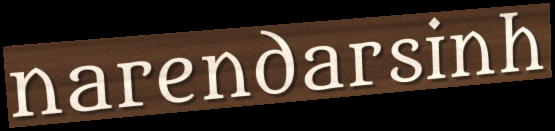
narendarsinh